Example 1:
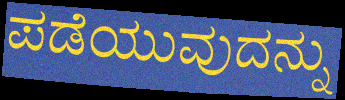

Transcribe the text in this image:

ಪಡೆಯುವುದನ್ನು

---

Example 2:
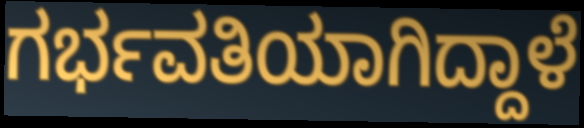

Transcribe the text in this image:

ಗರ್ಭವತಿಯಾಗಿದ್ದಾಳೆ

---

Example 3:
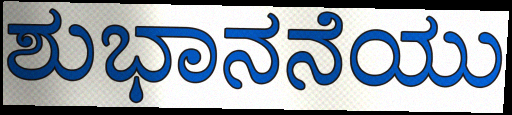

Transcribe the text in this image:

ಶುಭಾನನೆಯು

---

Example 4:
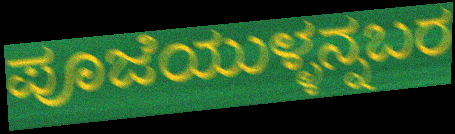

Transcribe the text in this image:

ಪೂಜೆಯುಳ್ಳನ್ನಬರ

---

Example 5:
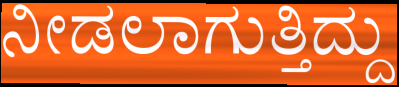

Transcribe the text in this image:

ನೀಡಲಾಗುತ್ತಿದ್ದು